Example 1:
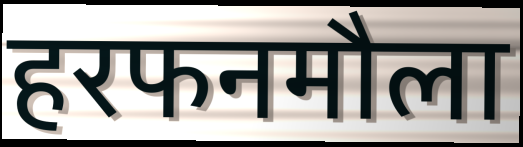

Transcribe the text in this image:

हरफनमौला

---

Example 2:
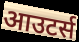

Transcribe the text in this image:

आउटर्स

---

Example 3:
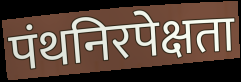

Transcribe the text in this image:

पंथनिरपेक्षता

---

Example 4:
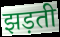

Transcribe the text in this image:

झड़ती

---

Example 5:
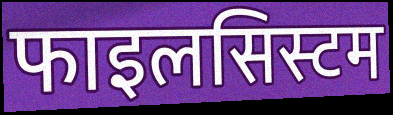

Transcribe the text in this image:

फाइलसिस्टम